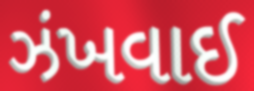
ઝંખવાઈ